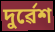
দুৰ্ৱেশ